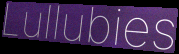
Lullubies